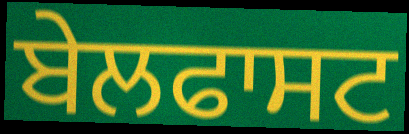
ਬੇਲਫਾਸਟ